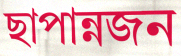
ছাপান্নজন